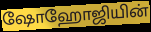
ஷோஹோஜியின்